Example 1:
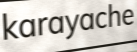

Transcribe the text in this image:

karayache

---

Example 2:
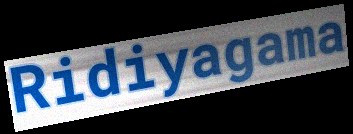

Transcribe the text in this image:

Ridiyagama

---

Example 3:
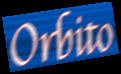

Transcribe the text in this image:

Orbito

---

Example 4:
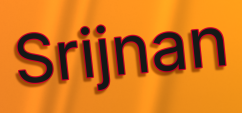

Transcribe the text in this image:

Srijnan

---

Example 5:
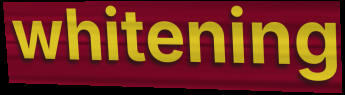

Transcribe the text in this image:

whitening